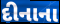
દીનાના